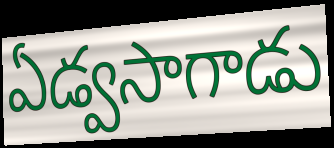
ఏడ్వసాగాడు